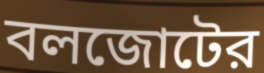
বলজোটের